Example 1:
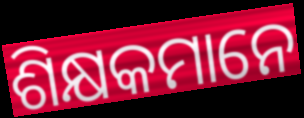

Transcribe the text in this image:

ଶିକ୍ଷକମାନେ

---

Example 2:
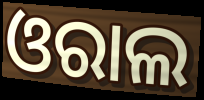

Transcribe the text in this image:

ଓରାଲ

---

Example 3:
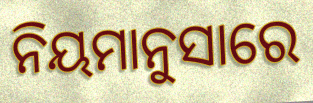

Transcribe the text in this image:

ନିୟମାନୁସାରେ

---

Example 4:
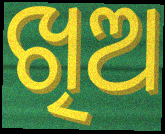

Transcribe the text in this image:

ଖିଅ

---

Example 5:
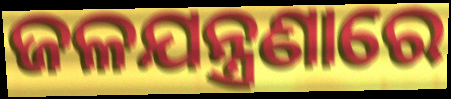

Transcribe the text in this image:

ଜଳଯନ୍ତ୍ରଣାରେ